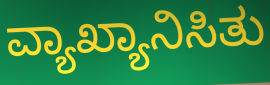
ವ್ಯಾಖ್ಯಾನಿಸಿತು